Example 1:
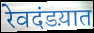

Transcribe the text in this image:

रेवदंडय़ात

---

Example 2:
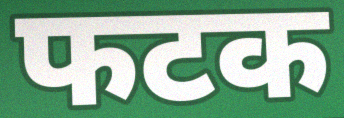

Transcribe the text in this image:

फटक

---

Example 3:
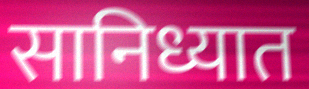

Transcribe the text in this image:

सानिध्यात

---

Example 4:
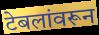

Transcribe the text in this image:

टेबलांवरून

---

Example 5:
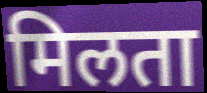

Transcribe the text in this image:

मिलता